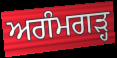
ਅਗੰਮਗੜ੍ਹ